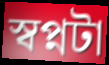
স্বপ্নটা